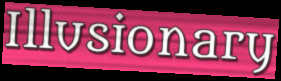
Illusionary